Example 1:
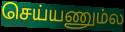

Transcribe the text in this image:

செய்யணும்ல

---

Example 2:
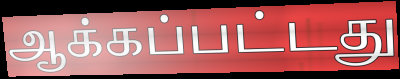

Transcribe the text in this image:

ஆக்கப்பட்டது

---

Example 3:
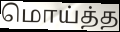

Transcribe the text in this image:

மொய்த்த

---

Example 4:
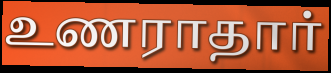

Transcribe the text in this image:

உணராதார்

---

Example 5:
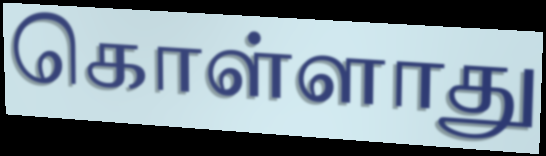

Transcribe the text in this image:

கொள்ளாது